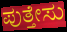
ಪುತ್ತೇಸು